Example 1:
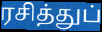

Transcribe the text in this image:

ரசித்துப்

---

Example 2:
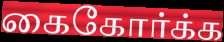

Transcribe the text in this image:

கைகோர்க்க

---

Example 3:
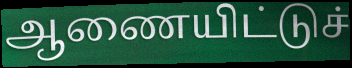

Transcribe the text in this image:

ஆணையிட்டுச்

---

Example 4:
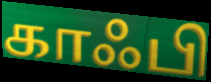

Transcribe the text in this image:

காஃபி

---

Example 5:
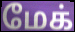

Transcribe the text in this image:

மேக்